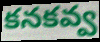
కనకవ్వ